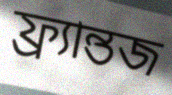
ফ্র্যান্তজ